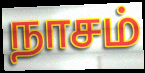
நாசம்